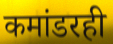
कमांडरही